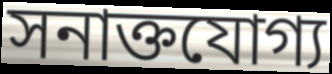
সনাক্তযোগ্য